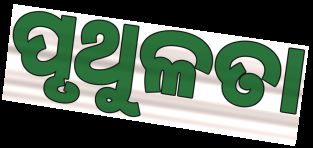
ପୃଥୁଳତା